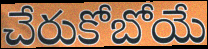
చేరుకోబోయే